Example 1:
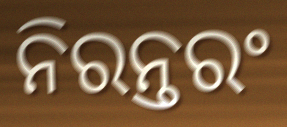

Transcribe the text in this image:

ନିରନ୍ତରଂ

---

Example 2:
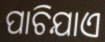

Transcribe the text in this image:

ପାଚିଯାଏ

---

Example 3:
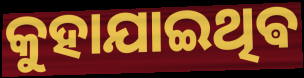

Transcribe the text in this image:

କୁହାଯାଇଥିଵ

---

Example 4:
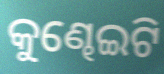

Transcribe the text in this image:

କୁଣ୍ଢେଇଟି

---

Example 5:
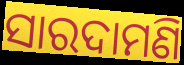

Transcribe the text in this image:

ସାରଦାମଣି